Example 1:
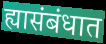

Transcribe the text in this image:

ह्यासंबंधात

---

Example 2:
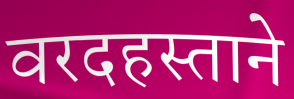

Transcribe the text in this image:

वरदहस्ताने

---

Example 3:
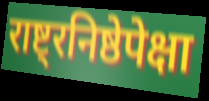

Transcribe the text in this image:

राष्ट्रनिष्ठेपेक्षा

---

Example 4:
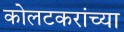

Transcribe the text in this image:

कोलटकरांच्या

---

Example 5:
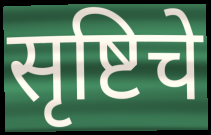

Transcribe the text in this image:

सृष्टिचे